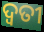
ଦ୍ଵତୀ